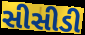
સીસીડી